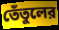
তেঁতুলের